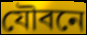
যৌবনে